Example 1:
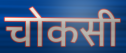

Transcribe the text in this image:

चोकसी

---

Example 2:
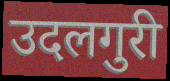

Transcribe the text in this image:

उदलगुरी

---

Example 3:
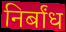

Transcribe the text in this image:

निर्बांध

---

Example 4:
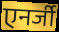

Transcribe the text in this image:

एनर्जी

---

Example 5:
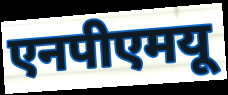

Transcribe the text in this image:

एनपीएमयू